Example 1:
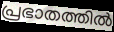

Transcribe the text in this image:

പ്രഭാതത്തിൽ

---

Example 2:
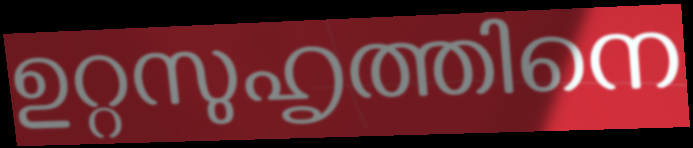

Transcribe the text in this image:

ഉറ്റസുഹൃത്തിനെ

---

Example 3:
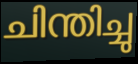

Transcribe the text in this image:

ചിന്തിച്ചു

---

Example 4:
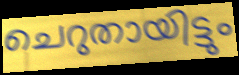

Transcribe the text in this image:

ചെറുതായിട്ടും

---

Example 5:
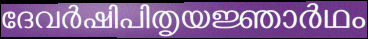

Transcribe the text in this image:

ദേവർഷിപിതൃയജ്ഞാർഥം